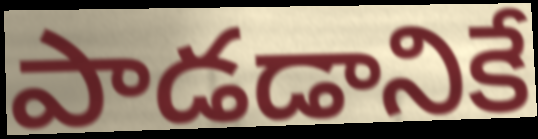
పాడడానికే